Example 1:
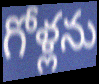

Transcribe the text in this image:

గోళ్లను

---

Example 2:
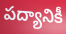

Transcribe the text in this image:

పద్యానికీ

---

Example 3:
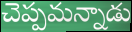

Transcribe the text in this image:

చెప్పమన్నాడు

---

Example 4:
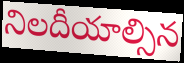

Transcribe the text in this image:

నిలదీయాల్సిన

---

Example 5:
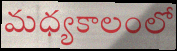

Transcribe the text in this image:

మధ్యకాలంలో